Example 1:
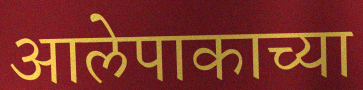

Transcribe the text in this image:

आलेपाकाच्या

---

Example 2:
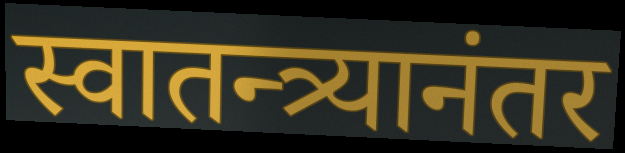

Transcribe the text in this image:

स्वातन्त्र्यानंतर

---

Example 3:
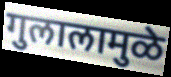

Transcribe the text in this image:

गुलालामुळे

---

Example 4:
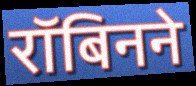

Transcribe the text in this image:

रॉबिनने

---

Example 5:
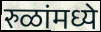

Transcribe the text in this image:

रुळांमध्ये